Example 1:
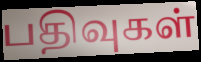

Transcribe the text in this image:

பதிவுகள்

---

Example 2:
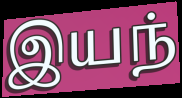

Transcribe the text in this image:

இயந்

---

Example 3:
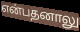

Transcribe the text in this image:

என்பதனாலு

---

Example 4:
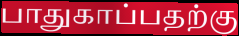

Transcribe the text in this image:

பாதுகாப்பதற்கு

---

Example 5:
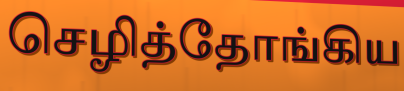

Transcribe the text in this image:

செழித்தோங்கிய